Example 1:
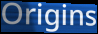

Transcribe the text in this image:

Origins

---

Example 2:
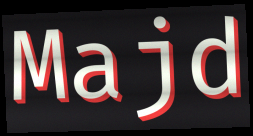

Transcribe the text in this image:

Majd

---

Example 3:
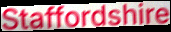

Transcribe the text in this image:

Staffordshire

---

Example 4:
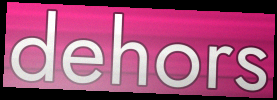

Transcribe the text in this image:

dehors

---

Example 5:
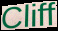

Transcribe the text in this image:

Cliff